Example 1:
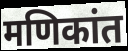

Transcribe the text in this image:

मणिकांत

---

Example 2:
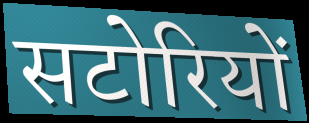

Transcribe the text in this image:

सटोरियों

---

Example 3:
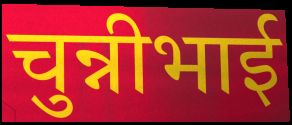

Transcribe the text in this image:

चुन्नीभाई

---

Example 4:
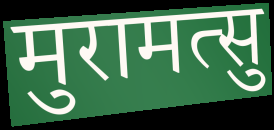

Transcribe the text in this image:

मुरामत्सु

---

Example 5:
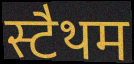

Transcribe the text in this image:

स्टैथम